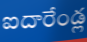
ఐదారేండ్ల